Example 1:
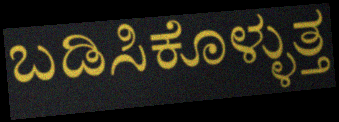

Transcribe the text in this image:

ಬಡಿಸಿಕೊಳ್ಳುತ್ತ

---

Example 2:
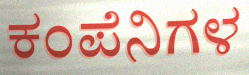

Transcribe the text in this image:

ಕಂಪೆನಿಗಳ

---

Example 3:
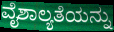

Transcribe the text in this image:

ವೈಶಾಲ್ಯತೆಯನ್ನು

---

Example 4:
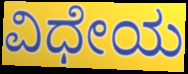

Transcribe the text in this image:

ವಿಧೇಯ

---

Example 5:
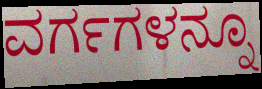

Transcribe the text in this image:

ವರ್ಗಗಳನ್ನೂ